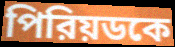
পিরিয়ডকে